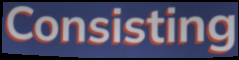
Consisting